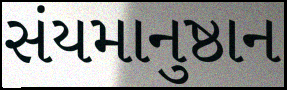
સંયમાનુષ્ઠાન